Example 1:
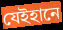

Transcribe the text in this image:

যেইহানে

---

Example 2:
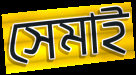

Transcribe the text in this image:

সেমাই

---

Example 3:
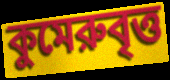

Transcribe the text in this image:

কুমেরুবৃত্ত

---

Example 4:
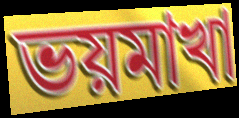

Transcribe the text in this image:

ভয়মাখা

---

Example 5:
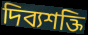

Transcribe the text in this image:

দিব্যশক্তি